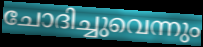
ചോദിച്ചുവെന്നും